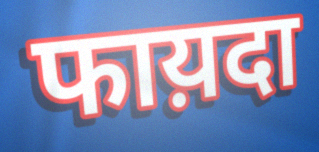
फाय़दा